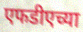
एफडीएच्या